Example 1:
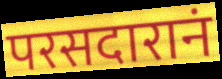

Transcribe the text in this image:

परसदारानं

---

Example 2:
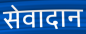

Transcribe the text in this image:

सेवादान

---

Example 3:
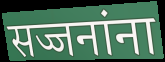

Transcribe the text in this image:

सज्जनांना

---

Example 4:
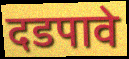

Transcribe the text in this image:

दडपावे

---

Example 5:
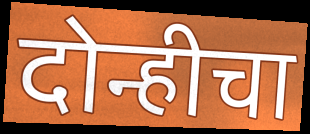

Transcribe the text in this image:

दोन्हीचा